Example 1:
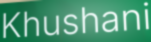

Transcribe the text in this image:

Khushani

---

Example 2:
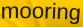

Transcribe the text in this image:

mooring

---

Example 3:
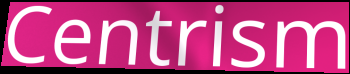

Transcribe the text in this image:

Centrism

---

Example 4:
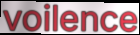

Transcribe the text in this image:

voilence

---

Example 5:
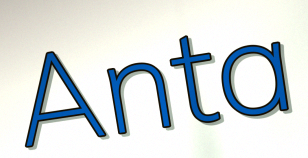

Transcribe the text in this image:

Anta